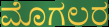
ಮೊಗಲರ